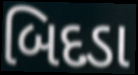
બિદડા